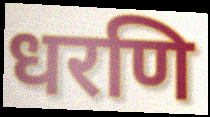
धरणि